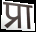
प्रा